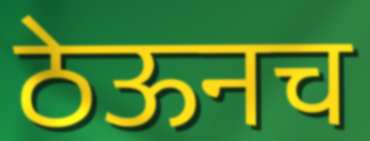
ठेऊनच